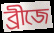
ব্রীজে